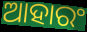
ଆହାରଂ